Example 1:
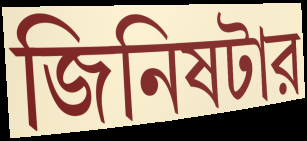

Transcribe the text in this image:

জিনিষটার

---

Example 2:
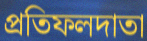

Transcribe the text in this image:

প্রতিফলদাতা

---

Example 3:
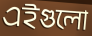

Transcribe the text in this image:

এইগুলো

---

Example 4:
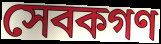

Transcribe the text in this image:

সেবকগণ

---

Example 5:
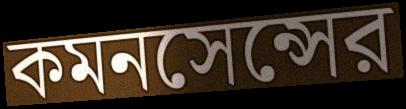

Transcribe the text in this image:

কমনসেন্সের